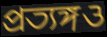
প্রত্যঙ্গও